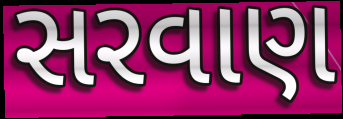
સરવાણ